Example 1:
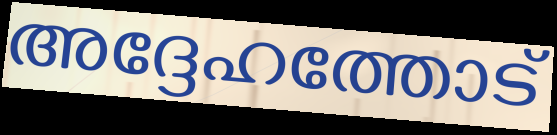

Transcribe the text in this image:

അദ്ദേഹത്തോട്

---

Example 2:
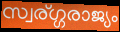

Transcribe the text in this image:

സ്വര്ഗ്ഗരാജ്യം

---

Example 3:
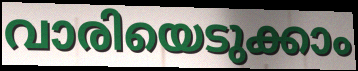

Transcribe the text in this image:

വാരിയെടുക്കാം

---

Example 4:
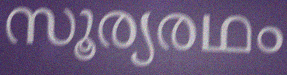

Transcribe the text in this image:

സൂര്യരഥം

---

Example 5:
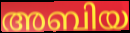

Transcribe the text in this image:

അബിയ